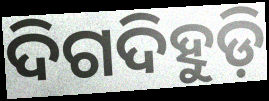
ଦିଗଦିହୁଡ଼ି